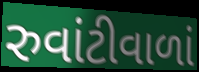
રુવાંટીવાળાં